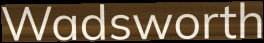
Wadsworth